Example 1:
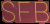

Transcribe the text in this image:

SFB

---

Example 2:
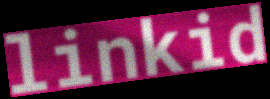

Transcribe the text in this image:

linkid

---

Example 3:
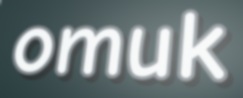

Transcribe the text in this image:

omuk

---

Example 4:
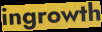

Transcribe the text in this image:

ingrowth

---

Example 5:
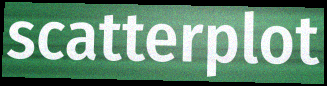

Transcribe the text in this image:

scatterplot